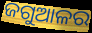
ଜଗୁଆଳର